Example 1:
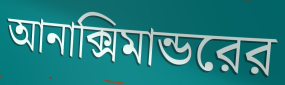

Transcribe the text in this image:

আনাক্সিমান্ডরের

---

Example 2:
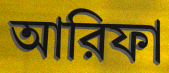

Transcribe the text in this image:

আরিফা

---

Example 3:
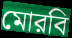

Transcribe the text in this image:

মোরবি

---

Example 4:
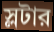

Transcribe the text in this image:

স্লটার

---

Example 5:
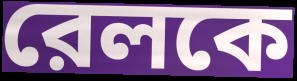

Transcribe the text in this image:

রেলকে